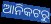
ଆନିକଟରୁ